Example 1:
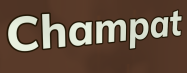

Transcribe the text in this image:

Champat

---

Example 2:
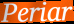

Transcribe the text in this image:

Periar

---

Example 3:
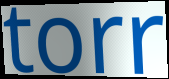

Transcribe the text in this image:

torr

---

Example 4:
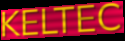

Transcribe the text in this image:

KELTEC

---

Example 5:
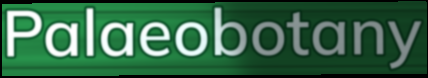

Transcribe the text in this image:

Palaeobotany